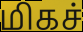
மிகச்